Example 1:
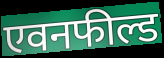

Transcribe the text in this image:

एवनफील्ड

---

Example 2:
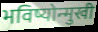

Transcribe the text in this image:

भविष्योन्मुखी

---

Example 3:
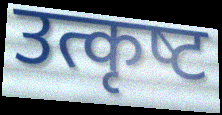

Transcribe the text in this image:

उत्कृष्‍ट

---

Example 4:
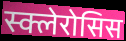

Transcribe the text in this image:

स्क्लेरोसिस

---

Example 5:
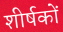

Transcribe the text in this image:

शीर्षकों